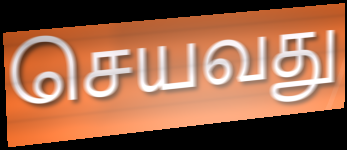
செயவது